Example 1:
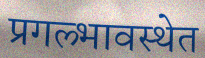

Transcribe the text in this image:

प्रगल्भावस्थेत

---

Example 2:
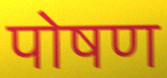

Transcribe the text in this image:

पोषण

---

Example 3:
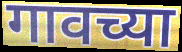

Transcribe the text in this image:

गावच्या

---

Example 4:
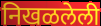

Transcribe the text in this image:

निखळलेली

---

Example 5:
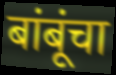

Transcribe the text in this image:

बांबूंचा